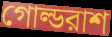
গোল্ডরাশ